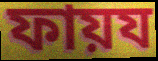
ফায়য